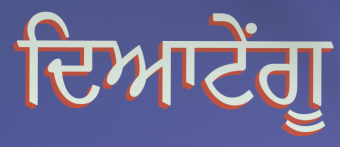
ਦਿਆਟੇਂਗੂ